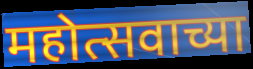
महोत्सवाच्या